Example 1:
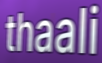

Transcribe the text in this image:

thaali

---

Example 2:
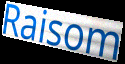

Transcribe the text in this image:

Raisom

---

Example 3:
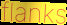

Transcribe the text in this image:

flanks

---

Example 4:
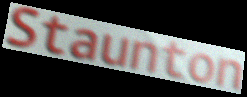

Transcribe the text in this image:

Staunton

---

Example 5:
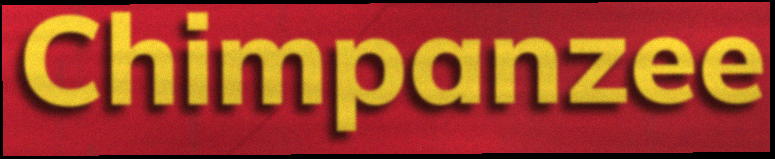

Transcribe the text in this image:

Chimpanzee